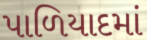
પાળિયાદમાં